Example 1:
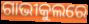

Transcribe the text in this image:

ଗାଭୀକୁଲରେ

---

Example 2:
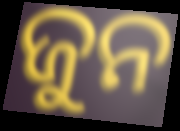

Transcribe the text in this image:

ଜୁନ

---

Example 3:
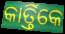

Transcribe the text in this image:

କାର୍ତ୍ତିକେ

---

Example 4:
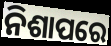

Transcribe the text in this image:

ନିଶାପରେ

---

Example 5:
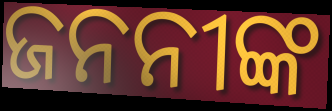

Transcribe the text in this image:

ଜନନୀଙ୍କ